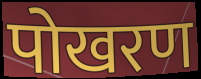
पोखरण